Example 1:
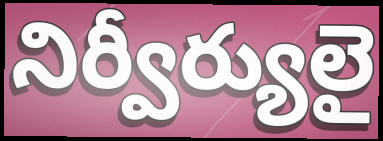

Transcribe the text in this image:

నిర్వీర్యులై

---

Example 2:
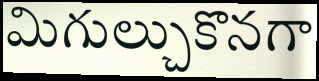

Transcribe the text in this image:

మిగుల్చుకొనగా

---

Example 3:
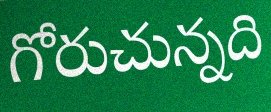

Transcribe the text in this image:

గోరుచున్నది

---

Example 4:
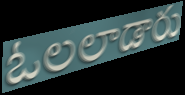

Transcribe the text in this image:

ఓలలాడారు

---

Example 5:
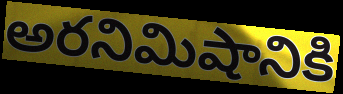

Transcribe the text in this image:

అరనిమిషానికి